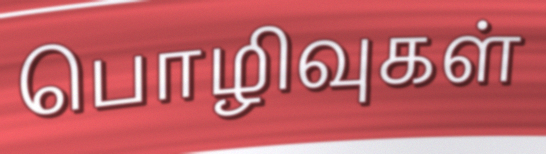
பொழிவுகள்